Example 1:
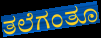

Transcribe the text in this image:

ತಲೆಗಂತೂ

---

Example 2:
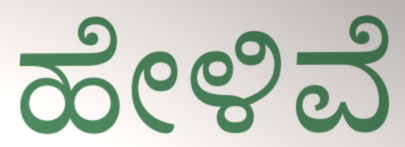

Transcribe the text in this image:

ಹೇಳಿವೆ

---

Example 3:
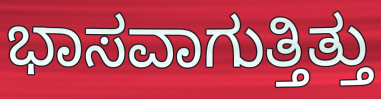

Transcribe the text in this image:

ಭಾಸವಾಗುತ್ತಿತ್ತು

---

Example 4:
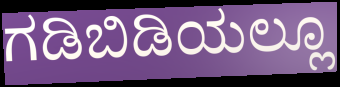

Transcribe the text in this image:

ಗಡಿಬಿಡಿಯಲ್ಲೂ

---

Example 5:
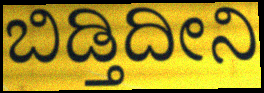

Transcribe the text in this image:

ಬಿಡ್ತಿದೀನಿ